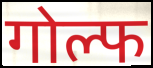
गोल्फ